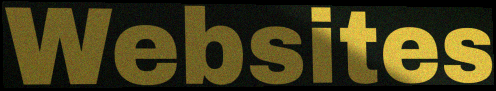
Websites